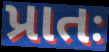
પ્રાતઃ